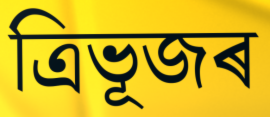
ত্ৰিভূজৰ